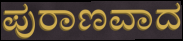
ಪುರಾಣವಾದ